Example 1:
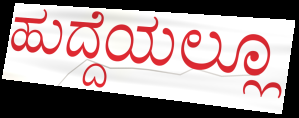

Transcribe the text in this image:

ಹುದ್ದೆಯಲ್ಲೂ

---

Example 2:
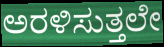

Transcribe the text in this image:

ಅರಳಿಸುತ್ತಲೇ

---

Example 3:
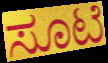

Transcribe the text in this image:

ಸೂಟೆ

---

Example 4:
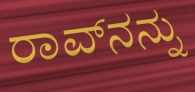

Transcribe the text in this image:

ರಾವ್‌ನನ್ನು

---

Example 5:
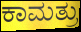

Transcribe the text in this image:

ಕಾಮತ್ರು